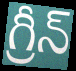
గ్రీన్